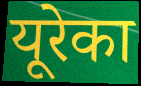
यूरेका